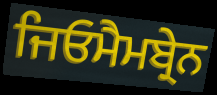
ਜਿਓਮੈਮਬ੍ਰੇਨ